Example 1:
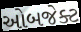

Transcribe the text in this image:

ઓબજેક્ટ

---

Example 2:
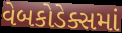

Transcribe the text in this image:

વેબકોડેક્સમાં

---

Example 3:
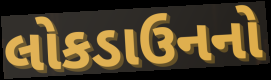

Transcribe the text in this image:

લોકડાઉનનો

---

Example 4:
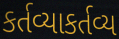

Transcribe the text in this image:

કર્તવ્યાકર્તવ્ય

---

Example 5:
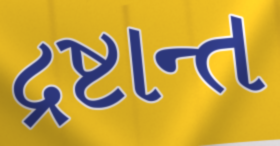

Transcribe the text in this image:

દ્રષ્ટાન્ત